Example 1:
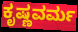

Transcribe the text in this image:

ಕೃಷ್ಣವರ್ಮ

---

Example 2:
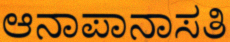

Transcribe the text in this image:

ಆನಾಪಾನಾಸತಿ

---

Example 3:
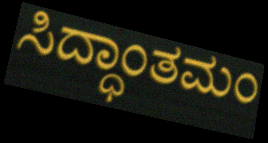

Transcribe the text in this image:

ಸಿದ್ಧಾಂತಮಂ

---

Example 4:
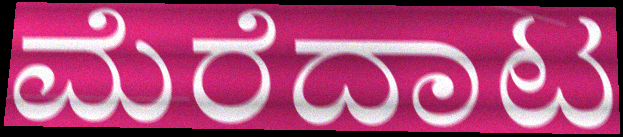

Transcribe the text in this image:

ಮೆರೆದಾಟ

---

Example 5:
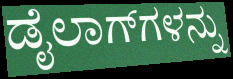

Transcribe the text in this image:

ಡೈಲಾಗ್‌ಗಳನ್ನು